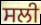
ਸਲੀ